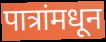
पात्रांमधून